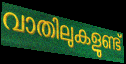
വാതിലുകളുണ്ട്